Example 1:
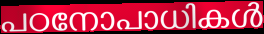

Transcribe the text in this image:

പഠനോപാധികൾ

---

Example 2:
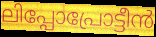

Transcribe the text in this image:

ലിപ്പോപ്രോട്ടീൻ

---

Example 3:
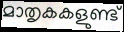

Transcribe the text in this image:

മാതൃകകളുണ്ട്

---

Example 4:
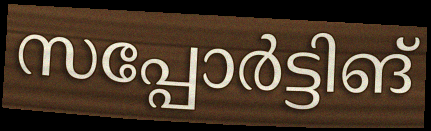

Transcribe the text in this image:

സപ്പോർട്ടിങ്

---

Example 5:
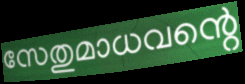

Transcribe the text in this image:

സേതുമാധവന്റെ